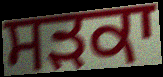
ਸੜਕਾ